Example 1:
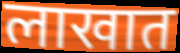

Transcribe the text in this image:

लाखात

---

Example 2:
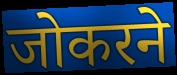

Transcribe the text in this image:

जोकरने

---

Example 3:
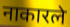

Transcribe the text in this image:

नाकारले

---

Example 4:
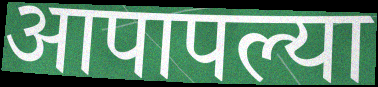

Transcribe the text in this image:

आपापल्या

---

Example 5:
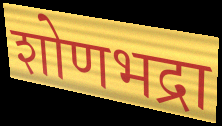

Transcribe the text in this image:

शोणभद्रा